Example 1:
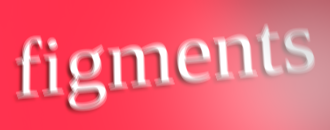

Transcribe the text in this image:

figments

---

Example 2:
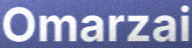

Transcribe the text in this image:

Omarzai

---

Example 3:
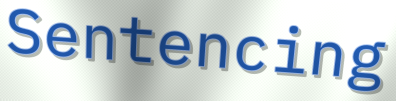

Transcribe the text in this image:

Sentencing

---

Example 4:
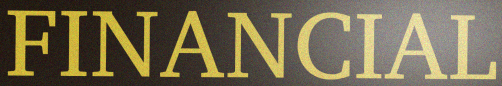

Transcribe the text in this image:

FINANCIAL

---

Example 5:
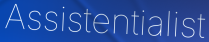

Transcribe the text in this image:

Assistentialist